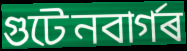
গুটেনবাৰ্গৰ